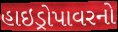
હાઇડ્રોપાવરનો